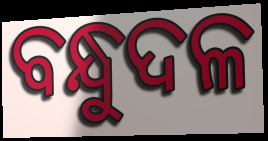
ବନ୍ଧୁଦଳ